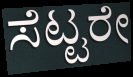
ಸೆಟ್ಟರೇ